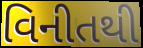
વિનીતથી